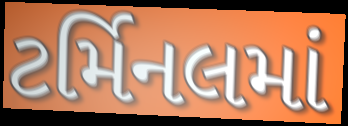
ટર્મિનલમાં